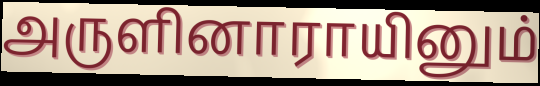
அருளினாராயினும்